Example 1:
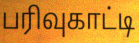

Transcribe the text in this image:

பரிவுகாட்டி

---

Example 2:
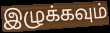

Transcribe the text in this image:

இழுக்கவும்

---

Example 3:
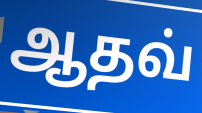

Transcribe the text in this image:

ஆதவ்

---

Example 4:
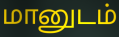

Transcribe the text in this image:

மானுடம்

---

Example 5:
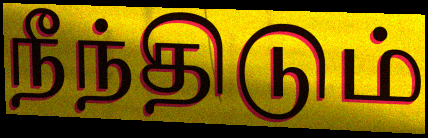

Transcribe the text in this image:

நீந்திடும்